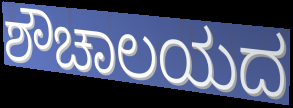
ಶೌಚಾಲಯದ